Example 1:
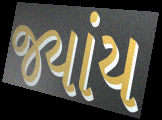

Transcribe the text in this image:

જ્યાંય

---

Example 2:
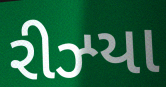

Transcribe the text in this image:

રીઝ્યા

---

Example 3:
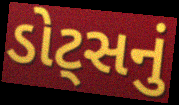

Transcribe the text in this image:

ડોટ્સનું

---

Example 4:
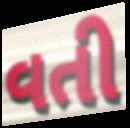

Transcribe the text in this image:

વતી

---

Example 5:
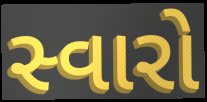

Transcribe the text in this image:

સ્વારો